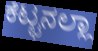
ಕೆಟ್ಟನಲ್ಲಾ